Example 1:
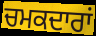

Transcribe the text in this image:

ਚਮਕਦਾਰਾਂ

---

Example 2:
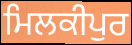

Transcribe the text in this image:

ਮਿਲਕੀਪੁਰ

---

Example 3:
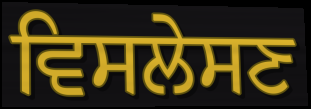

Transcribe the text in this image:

ਵਿਸਲੇਸਣ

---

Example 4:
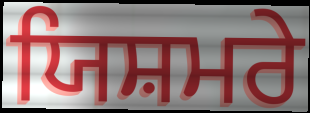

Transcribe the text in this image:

ਯਿਸ਼ਮਰੇ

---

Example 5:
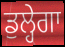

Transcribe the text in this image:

ਡੁਲ੍ਹੇਗਾ